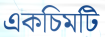
একচিমটি